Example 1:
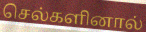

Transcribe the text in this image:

செல்களினால்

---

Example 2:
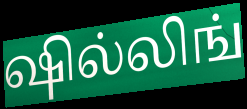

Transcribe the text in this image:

ஷில்லிங்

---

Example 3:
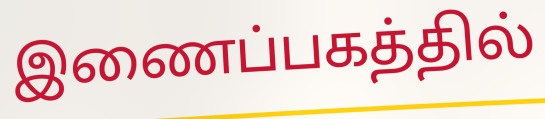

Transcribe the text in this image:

இணைப்பகத்தில்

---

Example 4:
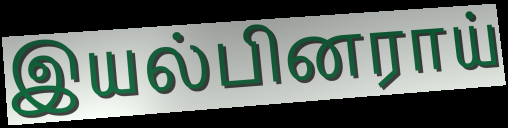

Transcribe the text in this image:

இயல்பினராய்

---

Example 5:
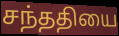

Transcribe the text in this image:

சந்ததியை